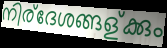
നിര്ദേശങ്ങള്ക്കും